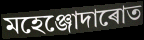
মহেঞ্জোদাৰোত